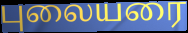
புலையரை